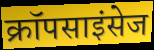
क्रॉपसाइंसेज